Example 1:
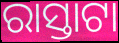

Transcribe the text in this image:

ରାସ୍ତାଟା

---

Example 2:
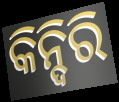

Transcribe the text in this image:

କିନ୍ଦିରି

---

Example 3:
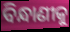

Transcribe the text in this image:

ବିନ୍ଧାଣୀକୁ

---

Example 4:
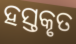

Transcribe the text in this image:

ହସ୍ତକୃତ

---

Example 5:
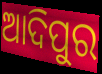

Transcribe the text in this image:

ଆଦିପୁର